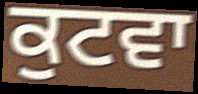
ਕੁਟਵਾ